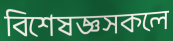
বিশেষজ্ঞসকলে